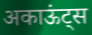
अकाऊंट्स